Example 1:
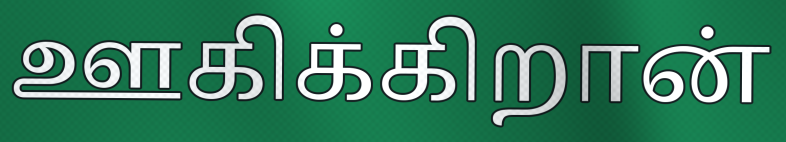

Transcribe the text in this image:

ஊகிக்கிறான்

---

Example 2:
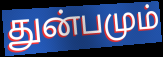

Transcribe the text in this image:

துன்பமும்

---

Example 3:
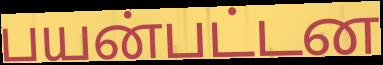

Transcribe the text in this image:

பயன்பட்டன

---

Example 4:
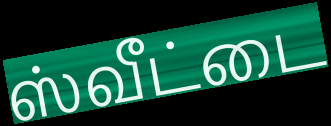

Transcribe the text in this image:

ஸ்வீட்டை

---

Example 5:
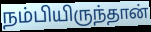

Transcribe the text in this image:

நம்பியிருந்தான்